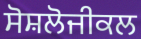
ਸੋਸ਼ਲੋਜੀਕਲ